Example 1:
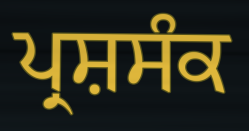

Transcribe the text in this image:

ਪ੍ਰਸ਼ਸੰਕ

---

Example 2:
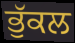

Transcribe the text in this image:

ਭੁੱਕਲ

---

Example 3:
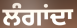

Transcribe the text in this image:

ਲੰਗਾਂਦਾ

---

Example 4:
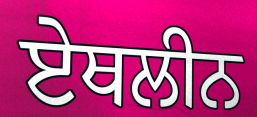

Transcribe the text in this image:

ਏਥਲੀਨ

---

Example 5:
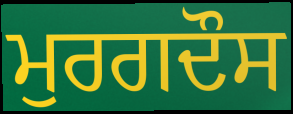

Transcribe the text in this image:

ਮੁਰਗਦੌਸ